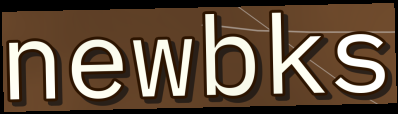
newbks